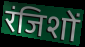
रंजिशों